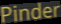
Pinder